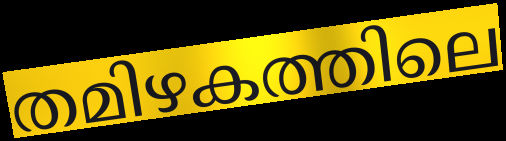
തമിഴകത്തിലെ